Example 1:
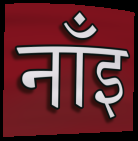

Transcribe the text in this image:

नाँइ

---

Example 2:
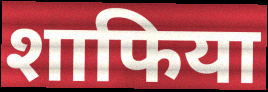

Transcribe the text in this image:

शाफिया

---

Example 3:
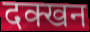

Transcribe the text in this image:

दक्खन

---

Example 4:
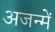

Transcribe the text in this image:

अजन्में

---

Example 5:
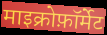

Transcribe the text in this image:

माइक्रोफ़ॉर्मेट